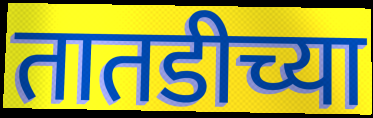
तातडीच्या